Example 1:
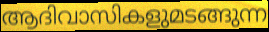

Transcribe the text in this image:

ആദിവാസികളുമടങ്ങുന്ന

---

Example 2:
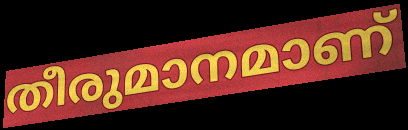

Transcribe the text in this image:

തീരുമാനമാണ്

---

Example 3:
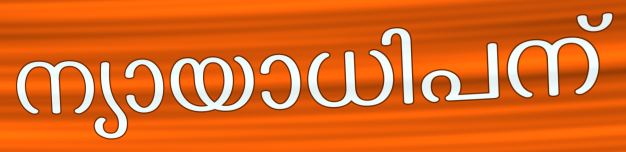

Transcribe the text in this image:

ന്യായാധിപന്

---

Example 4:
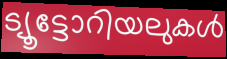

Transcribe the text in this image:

ട്യൂട്ടോറിയലുകൾ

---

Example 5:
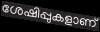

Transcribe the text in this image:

ശേഷിപ്പുകളാണ്